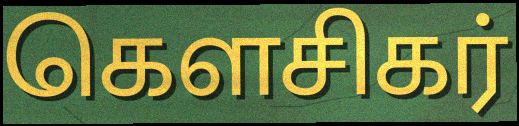
கௌசிகர்